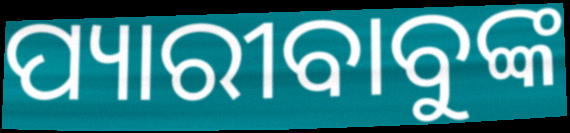
ପ୍ୟାରୀବାବୁଙ୍କ